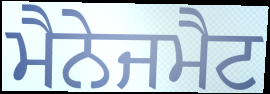
ਮੈਨੇਜਮੈਟ